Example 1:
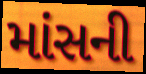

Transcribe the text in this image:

માંસની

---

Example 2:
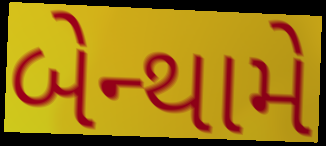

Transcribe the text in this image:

બેન્થામે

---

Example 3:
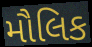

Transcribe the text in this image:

મૌલિક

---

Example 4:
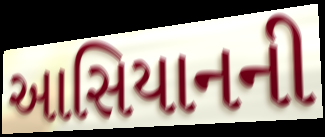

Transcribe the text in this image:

આસિયાનની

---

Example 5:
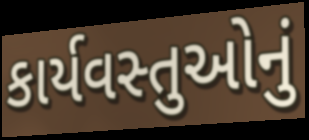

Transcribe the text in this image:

કાર્યવસ્તુઓનું